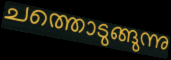
ചത്തൊടുങ്ങുന്നു